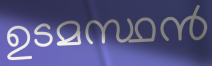
ഉടമസ്ഥൻ